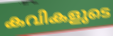
കവികളുടെ